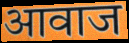
आवाज